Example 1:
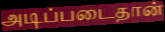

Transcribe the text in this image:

அடிப்படைதான்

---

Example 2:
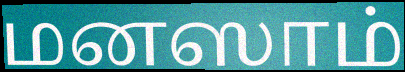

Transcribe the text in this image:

மனஸாம்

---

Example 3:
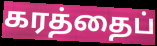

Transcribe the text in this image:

கரத்தைப்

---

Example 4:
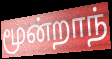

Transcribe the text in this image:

மூன்றாந்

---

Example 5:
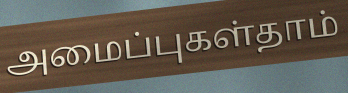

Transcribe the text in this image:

அமைப்புகள்தாம்